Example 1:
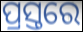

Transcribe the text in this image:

ପ୍ରସ୍ତରେ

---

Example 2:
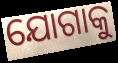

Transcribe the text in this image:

ଯୋଗାକୁ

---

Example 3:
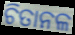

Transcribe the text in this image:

ଚିତାନଳ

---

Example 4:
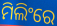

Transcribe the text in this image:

ମିଲିଂରେ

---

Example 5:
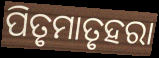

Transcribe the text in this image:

ପିତୃମାତୃହରା